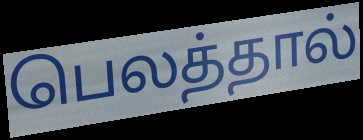
பெலத்தால்